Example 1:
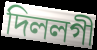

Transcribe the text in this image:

দিললগী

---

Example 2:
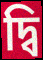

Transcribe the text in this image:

দ্বি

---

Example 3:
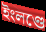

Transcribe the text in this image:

ইংলণ্ডে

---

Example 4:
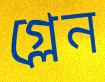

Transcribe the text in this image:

গ্লেন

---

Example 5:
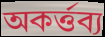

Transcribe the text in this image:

অকর্ত্তব্য